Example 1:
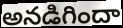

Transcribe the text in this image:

అనడిగిందా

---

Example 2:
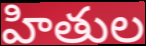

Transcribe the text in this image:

హితుల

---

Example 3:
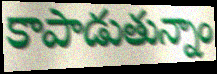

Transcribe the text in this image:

కాపాడుతున్నాం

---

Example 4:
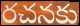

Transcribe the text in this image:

రచనకు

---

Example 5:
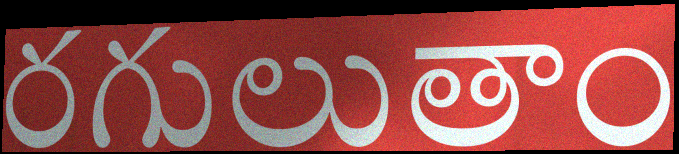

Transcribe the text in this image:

రగులుతాం